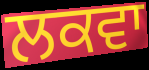
ਲਕਵਾ